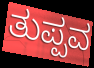
ತುಪ್ಪವ